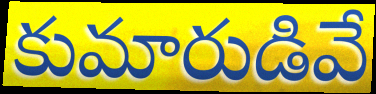
కుమారుడివే